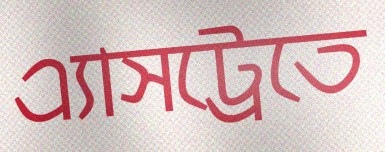
এ্যাসট্রেতে